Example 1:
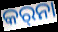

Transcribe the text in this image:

କର୍‍ନା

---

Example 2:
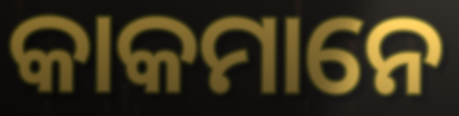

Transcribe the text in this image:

କାକମାନେ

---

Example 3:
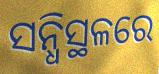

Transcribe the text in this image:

ସନ୍ଧିସ୍ଥଳରେ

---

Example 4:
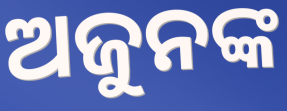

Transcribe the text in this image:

ଅଜୁନଙ୍କ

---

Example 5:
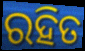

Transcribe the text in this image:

ରହିତ